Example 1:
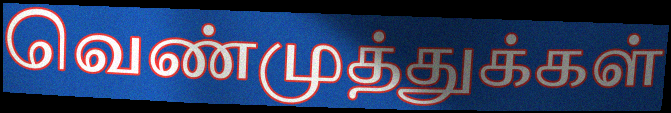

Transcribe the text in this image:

வெண்முத்துக்கள்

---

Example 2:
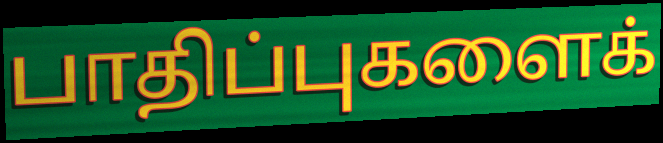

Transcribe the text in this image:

பாதிப்புகளைக்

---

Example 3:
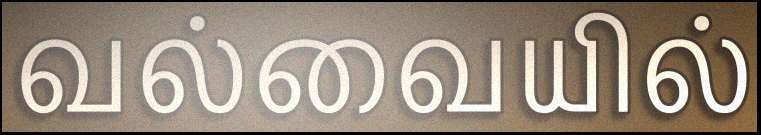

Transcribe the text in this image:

வல்வையில்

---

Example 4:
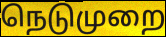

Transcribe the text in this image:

நெடுமுறை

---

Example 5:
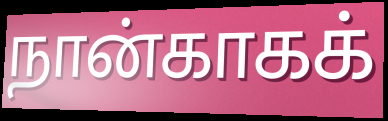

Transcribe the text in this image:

நான்காகக்